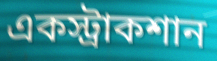
একস্ট্রাকশান